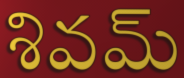
శివమ్